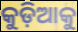
କୁଡ଼ିଆକୁ